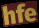
hfe